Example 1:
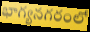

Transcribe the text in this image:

భాగ్యనగరంలో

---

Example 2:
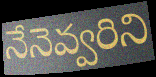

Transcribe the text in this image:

నేనెవ్వరిని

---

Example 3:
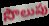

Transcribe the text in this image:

సొలుపు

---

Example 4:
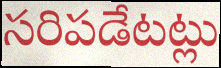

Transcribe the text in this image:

సరిపడేటట్లు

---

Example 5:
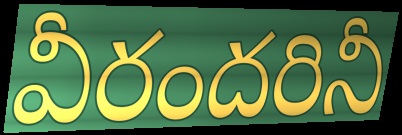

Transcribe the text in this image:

వీరందరినీ